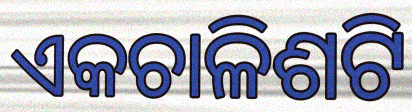
ଏକଚାଳିଶଟି